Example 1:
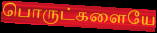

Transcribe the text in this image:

பொருட்களையே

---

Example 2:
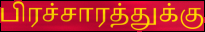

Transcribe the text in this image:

பிரச்சாரத்துக்கு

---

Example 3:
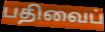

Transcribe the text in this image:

பதிவைப்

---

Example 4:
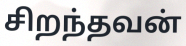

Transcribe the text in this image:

சிறந்தவன்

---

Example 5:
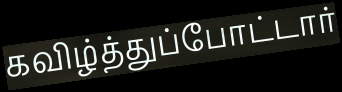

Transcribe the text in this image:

கவிழ்த்துப்போட்டார்